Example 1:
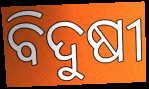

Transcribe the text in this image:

ବିଦୁଷୀ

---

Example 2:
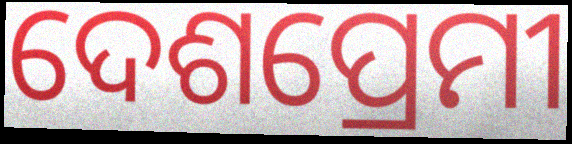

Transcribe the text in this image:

ଦେଶପ୍ରେମୀ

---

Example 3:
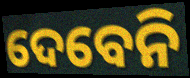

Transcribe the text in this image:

ଦେବେନି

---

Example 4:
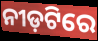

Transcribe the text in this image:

ନୀଡ଼ଟିରେ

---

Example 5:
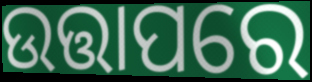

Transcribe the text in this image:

ଉତ୍ତାପରେ